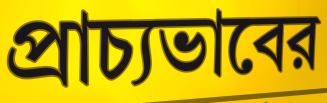
প্রাচ্যভাবের